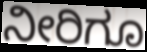
ನೀರಿಗೂ